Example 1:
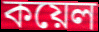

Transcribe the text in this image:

কয়েল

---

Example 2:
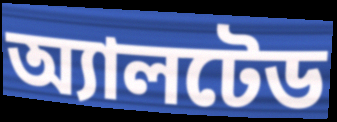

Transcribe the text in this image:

অ্যালটেড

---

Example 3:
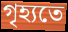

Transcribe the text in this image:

গৃহ্যতে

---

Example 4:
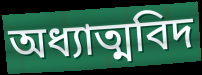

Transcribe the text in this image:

অধ্যাত্মবিদ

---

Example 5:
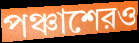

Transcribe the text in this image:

পঞ্চাশেরও